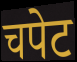
चपेट